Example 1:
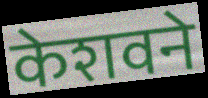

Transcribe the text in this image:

केशवने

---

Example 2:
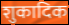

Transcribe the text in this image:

शुकादिक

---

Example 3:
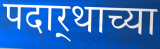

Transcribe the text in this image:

पदार्थाच्या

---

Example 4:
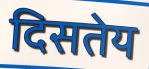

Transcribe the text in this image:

दिसतेय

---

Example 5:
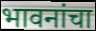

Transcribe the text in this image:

भावनांचा